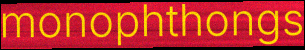
monophthongs